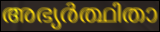
അഭ്യർത്ഥിതാ